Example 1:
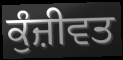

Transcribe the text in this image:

ਕੁੰਜ਼ੀਵਤ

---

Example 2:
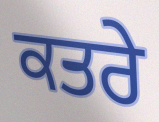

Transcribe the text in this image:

ਕਤਰੇ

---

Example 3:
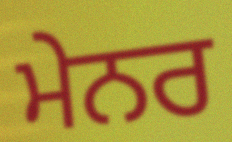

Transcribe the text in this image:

ਮੇਨਰ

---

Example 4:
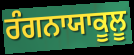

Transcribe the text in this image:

ਰੰਗਨਾਯਾਕੂਲੂ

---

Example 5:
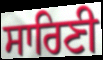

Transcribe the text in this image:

ਸਾਰਿਣੀ